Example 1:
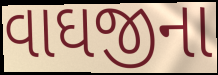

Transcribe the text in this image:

વાઘજીના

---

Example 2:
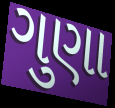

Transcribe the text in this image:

ગુણા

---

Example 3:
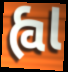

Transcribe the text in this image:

હ્વા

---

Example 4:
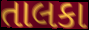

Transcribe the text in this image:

તાલકા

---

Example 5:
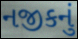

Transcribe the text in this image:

નજીકનું